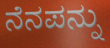
ನೆನಪನ್ನು